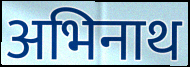
अभिनाथ